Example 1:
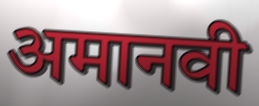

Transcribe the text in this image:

अमानवी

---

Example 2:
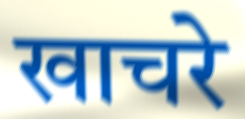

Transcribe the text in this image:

खाचरे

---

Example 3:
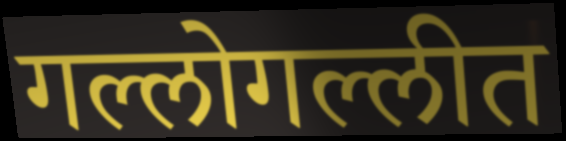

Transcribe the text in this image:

गल्लोगल्लीत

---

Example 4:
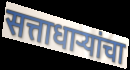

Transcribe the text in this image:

सत्ताधाऱ्यांचा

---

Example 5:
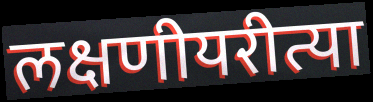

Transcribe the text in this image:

लक्षणीयरीत्या